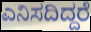
ಎನಿಸದಿದ್ದರೆ